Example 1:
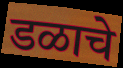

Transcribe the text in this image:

डळाचे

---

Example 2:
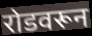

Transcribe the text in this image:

रोडवरून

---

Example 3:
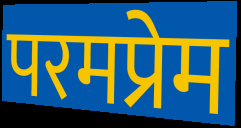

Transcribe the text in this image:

परमप्रेम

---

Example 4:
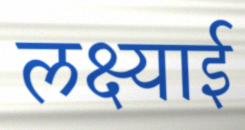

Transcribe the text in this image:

लक्ष्याई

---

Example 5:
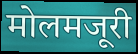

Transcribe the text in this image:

मोलमजूरी